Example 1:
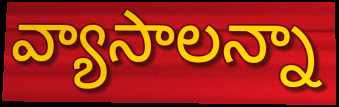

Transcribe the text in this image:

వ్యాసాలన్నా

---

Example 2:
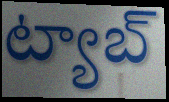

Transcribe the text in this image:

ట్యాబ్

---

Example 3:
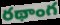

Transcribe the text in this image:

రథాంగ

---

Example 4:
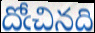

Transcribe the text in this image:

దోఁచినది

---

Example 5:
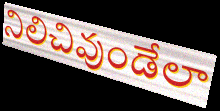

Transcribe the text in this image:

నిలిచివుండేలా